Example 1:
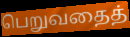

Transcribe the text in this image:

பெறுவதைத்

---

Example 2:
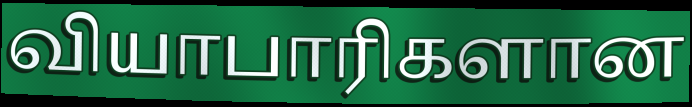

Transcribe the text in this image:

வியாபாரிகளான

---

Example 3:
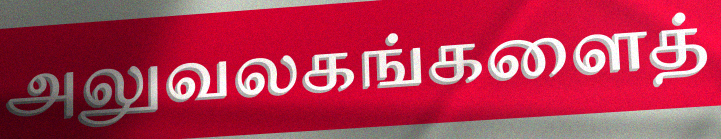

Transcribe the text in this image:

அலுவலகங்களைத்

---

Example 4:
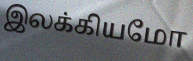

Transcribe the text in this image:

இலக்கியமோ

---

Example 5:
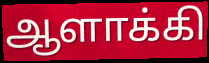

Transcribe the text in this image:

ஆளாக்கி